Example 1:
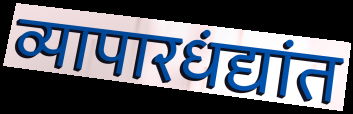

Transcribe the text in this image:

व्यापारधंद्यांत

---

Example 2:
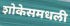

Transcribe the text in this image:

शोकेसमधली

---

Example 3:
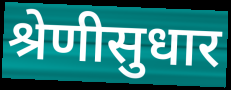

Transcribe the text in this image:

श्रेणीसुधार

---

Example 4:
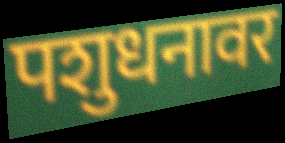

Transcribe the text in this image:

पशुधनावर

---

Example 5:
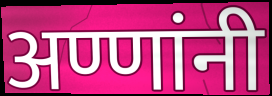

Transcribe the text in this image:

अण्णांनी